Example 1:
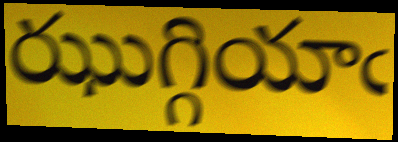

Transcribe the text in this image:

ఝుగ్గియాఁ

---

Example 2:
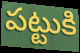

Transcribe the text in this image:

పట్టుకి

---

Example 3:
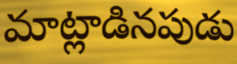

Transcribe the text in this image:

మాట్లాడినపుడు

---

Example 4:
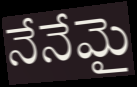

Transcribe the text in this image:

నేనేమై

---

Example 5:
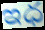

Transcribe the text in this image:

ఇధ